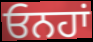
ਓਨਹਾਂ